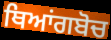
ਥਿਆਂਗਬੋਚ